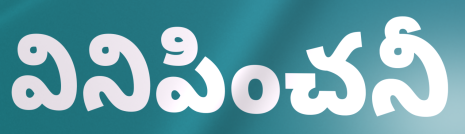
వినిపించనీ